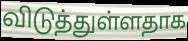
விடுத்துள்ளதாக